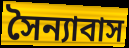
সৈন্যাবাস